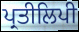
ਪ੍ਰਤੀਲਿਪੀ